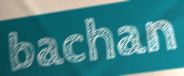
bachan